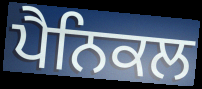
ਪੈਨਿਕਲ